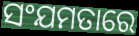
ସଂଯମତାରେ